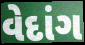
વેદાંગ